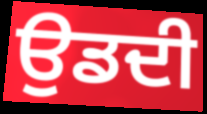
ਉਡਦੀ